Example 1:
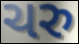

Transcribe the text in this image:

ચરુ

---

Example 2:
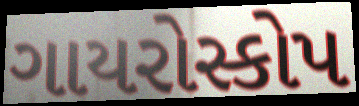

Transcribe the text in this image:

ગાયરોસ્કોપ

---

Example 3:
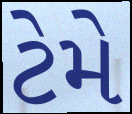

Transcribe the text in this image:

ટેમે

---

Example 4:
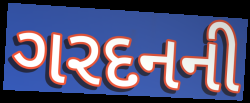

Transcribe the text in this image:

ગરદનની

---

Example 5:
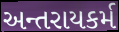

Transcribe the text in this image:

અન્તરાયકર્મ